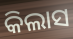
କିଲାସ